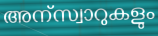
അന്സ്വാറുകളും